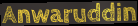
Anwaruddin